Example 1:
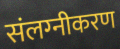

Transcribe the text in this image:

संलग्‍नीकरण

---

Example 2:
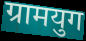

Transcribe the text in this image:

ग्रामयुग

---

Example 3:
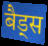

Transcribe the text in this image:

बैड्स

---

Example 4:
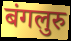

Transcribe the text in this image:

बंगलुरु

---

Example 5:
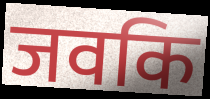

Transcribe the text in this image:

जवकि